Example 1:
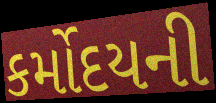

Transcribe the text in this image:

કર્મોદયની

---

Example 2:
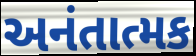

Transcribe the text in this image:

અનંતાત્મક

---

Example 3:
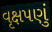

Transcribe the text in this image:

વૃક્ષપણું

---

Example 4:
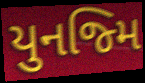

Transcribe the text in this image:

યુનજ્મિ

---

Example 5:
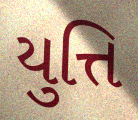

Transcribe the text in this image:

યુત્તિ